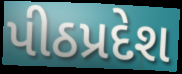
પીઠપ્રદેશ